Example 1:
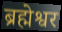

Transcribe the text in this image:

ब्रह्मेश्वर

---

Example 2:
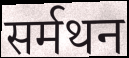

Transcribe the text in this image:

सर्मथन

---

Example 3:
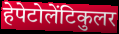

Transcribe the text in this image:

हेपेटोलेंटिकुलर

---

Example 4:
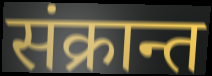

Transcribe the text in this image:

संक्रान्त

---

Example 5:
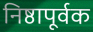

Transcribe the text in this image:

निष्ठापूर्वक